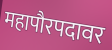
महापौरपदावर